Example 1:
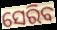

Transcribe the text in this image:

ସେରିବ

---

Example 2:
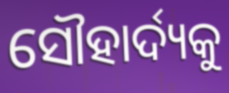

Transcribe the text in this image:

ସୌହାର୍ଦ୍ୟକୁ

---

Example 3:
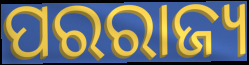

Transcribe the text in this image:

ପରରାଜ୍ୟ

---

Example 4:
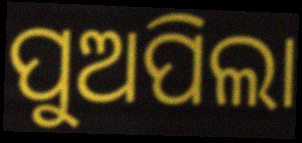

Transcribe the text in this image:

ପୁଅପିଲା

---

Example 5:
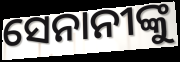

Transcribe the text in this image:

ସେନାନୀଙ୍କୁ